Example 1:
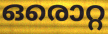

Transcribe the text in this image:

ഒരൊറ്റ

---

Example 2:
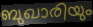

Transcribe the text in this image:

ബുഖാരിയും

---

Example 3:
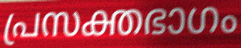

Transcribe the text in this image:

പ്രസക്തഭാഗം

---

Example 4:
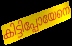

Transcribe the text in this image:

കിട്ടിപ്പോയേനെ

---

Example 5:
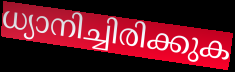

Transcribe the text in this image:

ധ്യാനിച്ചിരിക്കുക